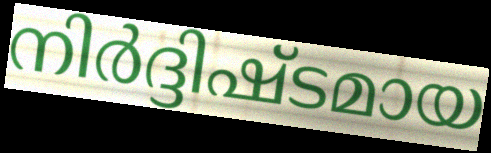
നിർദ്ദിഷ്ടമായ